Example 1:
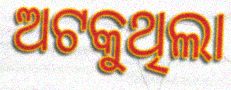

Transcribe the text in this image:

ଅଟକୁଥିଲା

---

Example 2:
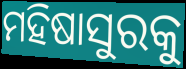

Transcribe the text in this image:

ମହିଷାସୁରକୁ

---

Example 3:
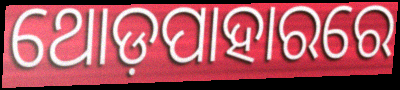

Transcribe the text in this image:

ଥୋଡ଼ପାହାରରେ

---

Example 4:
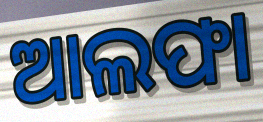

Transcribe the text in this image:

ଆଲଫା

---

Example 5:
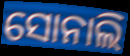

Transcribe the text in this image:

ସୋନାଲି